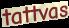
tattvas